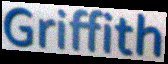
Griffith